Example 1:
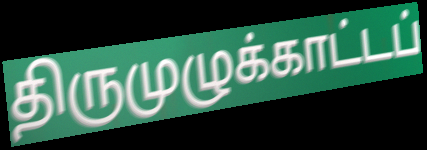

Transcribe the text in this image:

திருமுழுக்காட்டப்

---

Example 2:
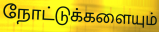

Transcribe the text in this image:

நோட்டுக்களையும்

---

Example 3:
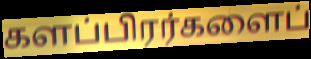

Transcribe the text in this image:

களப்பிரர்களைப்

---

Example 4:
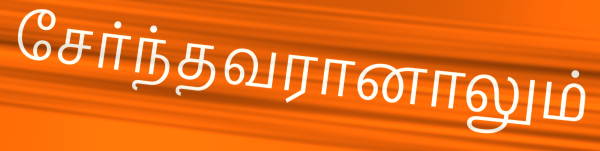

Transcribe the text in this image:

சேர்ந்தவரானாலும்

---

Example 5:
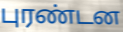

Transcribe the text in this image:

புரண்டன